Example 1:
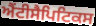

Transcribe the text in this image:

ਐਂਟੀਸੈਪਿਟਿਕਸ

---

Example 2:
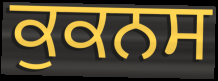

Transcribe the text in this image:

ਕੁਕਨਸ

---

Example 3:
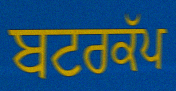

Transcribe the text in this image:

ਬਟਰਕੱਪ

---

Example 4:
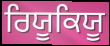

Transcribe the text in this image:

ਰਿਯੂਕਿਯੂ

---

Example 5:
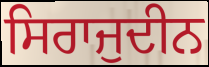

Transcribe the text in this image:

ਸਿਰਾਜੁਦੀਨ